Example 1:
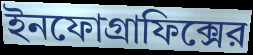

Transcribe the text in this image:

ইনফোগ্রাফিক্সের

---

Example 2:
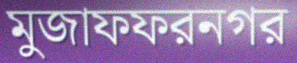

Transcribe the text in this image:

মুজাফফরনগর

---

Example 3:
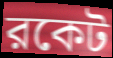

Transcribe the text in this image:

রকেট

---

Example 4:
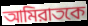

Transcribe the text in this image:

আমিরাতকে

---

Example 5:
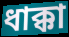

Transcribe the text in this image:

ধাক্কা